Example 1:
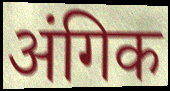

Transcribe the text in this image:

अंगिक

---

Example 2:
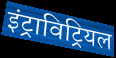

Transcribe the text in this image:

इंट्राविट्रियल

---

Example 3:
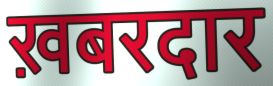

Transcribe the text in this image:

ख़बरदार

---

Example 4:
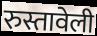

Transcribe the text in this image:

रुस्तावेली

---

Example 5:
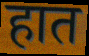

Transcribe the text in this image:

हात